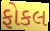
ફોકલ